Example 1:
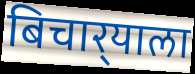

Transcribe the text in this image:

बिचार्‍याला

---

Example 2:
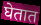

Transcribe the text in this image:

घेतात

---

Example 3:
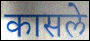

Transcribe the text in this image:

कासले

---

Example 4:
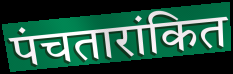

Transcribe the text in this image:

पंचतारांकित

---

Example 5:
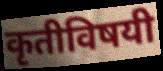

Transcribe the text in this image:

कृतीविषयी